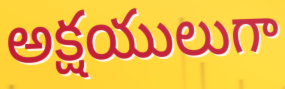
అక్షయులుగా